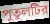
পুতুলটির